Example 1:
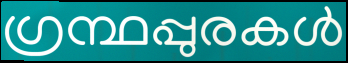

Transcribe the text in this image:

ഗ്രന്ഥപ്പുരകൾ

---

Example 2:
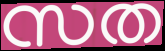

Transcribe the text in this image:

സത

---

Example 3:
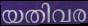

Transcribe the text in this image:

യതിവര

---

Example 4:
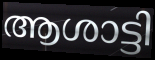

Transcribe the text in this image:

ആശാട്ടി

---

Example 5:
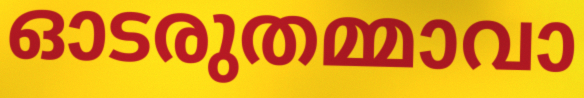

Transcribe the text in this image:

ഓടരുതമ്മാവാ